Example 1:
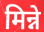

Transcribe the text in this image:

मिन्ने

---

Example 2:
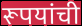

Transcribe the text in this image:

रूपयांची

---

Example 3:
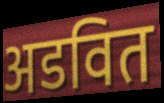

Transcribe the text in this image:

अडवित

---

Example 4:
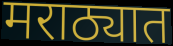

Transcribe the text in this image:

मराठ्यात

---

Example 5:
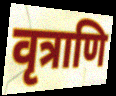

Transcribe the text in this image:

वृत्राणि